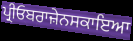
ਪ੍ਰੀਓਬਰਾਜ਼ੇਨਸਕਾਇਆ